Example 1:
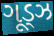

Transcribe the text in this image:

ગૂડ્ઝ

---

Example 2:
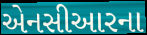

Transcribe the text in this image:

એનસીઆરના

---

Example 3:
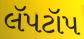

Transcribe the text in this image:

લૅપટૉપ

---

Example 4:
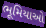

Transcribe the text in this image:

ભૂમિયાઓ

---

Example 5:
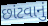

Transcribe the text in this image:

છાંટવાનું